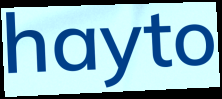
hayto